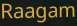
Raagam